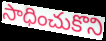
సాధించుకొని